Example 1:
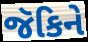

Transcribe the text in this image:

જૅકિને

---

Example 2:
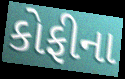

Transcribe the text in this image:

કોફીના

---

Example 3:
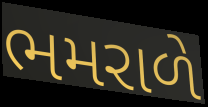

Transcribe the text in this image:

ભમરાળે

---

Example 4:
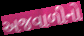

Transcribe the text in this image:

અજવાળીનો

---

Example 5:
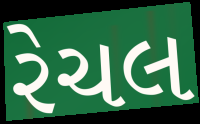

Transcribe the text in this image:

રેચલ